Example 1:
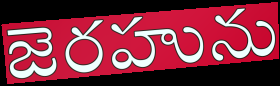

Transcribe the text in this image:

జెరహును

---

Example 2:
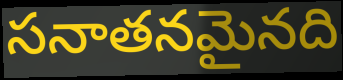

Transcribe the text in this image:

సనాతనమైనది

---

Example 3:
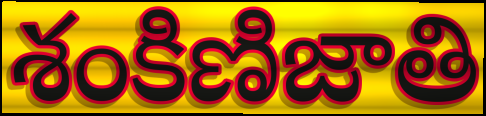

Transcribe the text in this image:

శంకిణిజాతి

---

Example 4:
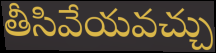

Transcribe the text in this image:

తీసివేయవచ్చు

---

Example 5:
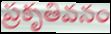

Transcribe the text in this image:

ప్రకృతివనం